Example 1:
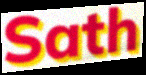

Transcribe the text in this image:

Sath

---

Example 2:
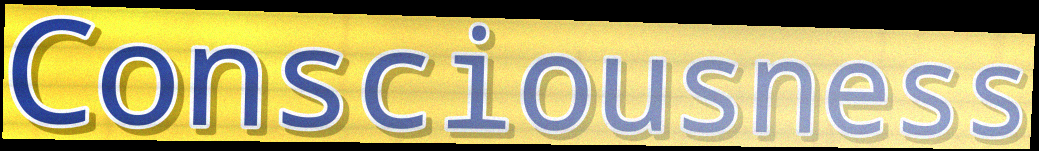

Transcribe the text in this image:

Consciousness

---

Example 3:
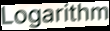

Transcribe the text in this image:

Logarithm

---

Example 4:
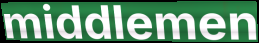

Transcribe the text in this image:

middlemen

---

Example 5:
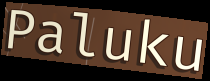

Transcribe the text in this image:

Paluku